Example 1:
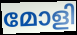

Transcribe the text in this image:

മോളി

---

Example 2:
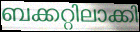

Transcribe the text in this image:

ബക്കറ്റിലാക്കി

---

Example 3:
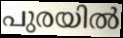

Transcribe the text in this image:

പുരയിൽ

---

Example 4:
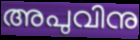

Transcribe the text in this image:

അപുവിനു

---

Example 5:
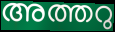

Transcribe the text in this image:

അത്തറു